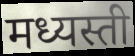
मध्यस्ती